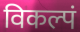
विकल्पं